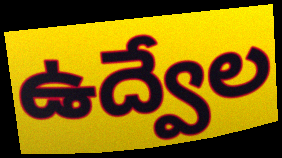
ఉద్వేల